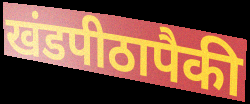
खंडपीठापैकी